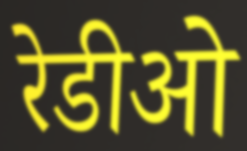
रेडीओ